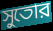
সুতোর